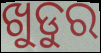
ଖୁଡୁର